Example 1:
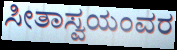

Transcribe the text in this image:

ಸೀತಾಸ್ವಯಂವರ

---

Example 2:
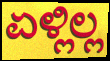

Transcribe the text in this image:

ಏಳ್ಲಿಲ್ಲ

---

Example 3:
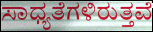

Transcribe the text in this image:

ಸಾಧ್ಯತೆಗಳಿರುತ್ತವೆ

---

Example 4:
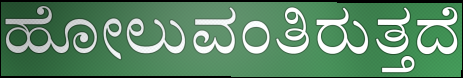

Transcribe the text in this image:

ಹೋಲುವಂತಿರುತ್ತದೆ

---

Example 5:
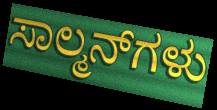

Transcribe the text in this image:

ಸಾಲ್ಮನ್‌ಗಳು